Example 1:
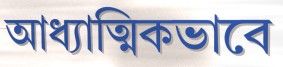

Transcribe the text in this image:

আধ্যাত্মিকভাবে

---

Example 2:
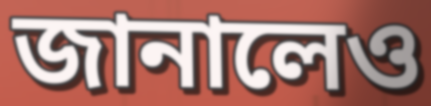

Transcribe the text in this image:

জানালেও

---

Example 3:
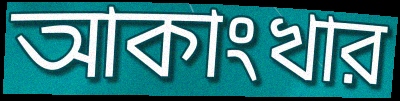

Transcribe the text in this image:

আকাংখার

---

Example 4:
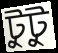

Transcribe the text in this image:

টুটু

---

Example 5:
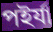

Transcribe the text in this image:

পইর্যা